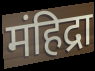
मंहिद्रा